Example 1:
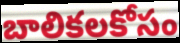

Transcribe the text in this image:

బాలికలకోసం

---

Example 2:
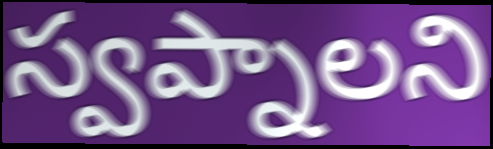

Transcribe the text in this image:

స్వప్నాలని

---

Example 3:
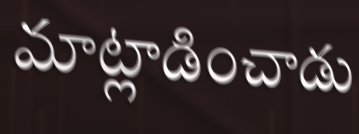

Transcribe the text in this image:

మాట్లాడించాడు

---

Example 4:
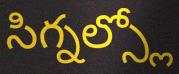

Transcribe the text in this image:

సిగ్నల్స్లో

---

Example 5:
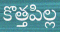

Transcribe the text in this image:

కొత్తపిల్ల